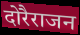
दोरैराजन